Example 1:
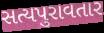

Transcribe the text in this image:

સત્યપુરાવતાર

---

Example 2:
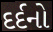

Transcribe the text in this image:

દર્દનો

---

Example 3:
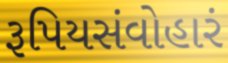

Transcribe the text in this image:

રૂપિયસંવોહારં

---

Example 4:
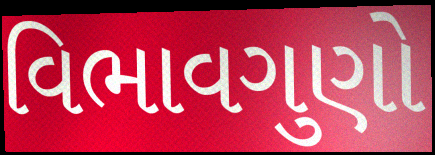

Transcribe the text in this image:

વિભાવગુણો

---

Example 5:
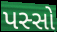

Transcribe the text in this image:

પસ્સો